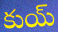
కుయ్